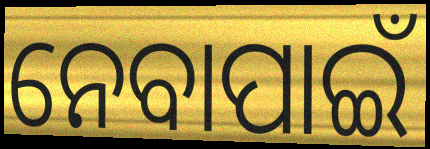
ନେବାପାଇଁ